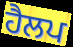
ਹੈਲਪ